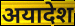
अयादेश